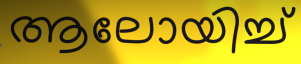
ആലോയിച്ച്